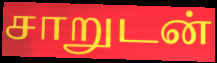
சாறுடன்